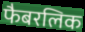
फैबरलिक